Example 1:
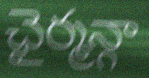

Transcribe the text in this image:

ఛైర్మన్గా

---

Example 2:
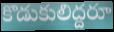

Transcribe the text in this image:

కొడుకులిద్దరూ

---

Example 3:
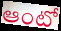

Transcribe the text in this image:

ఆంటో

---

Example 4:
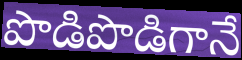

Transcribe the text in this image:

పొడిపొడిగానే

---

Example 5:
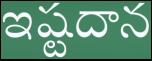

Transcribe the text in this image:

ఇష్టదాన